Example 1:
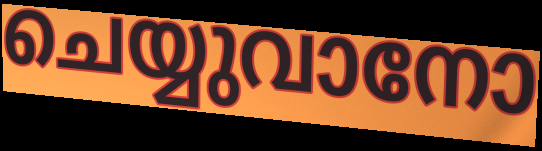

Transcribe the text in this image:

ചെയ്യുവാനോ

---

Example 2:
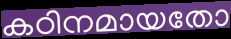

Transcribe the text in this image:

കഠിനമായതോ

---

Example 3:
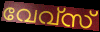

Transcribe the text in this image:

വേവ്സ്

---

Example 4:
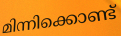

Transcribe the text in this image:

മിന്നിക്കൊണ്ട്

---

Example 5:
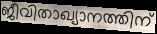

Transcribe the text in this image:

ജീവിതാഖ്യാനത്തിന്